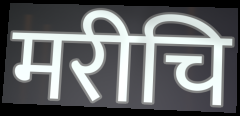
मरीचि